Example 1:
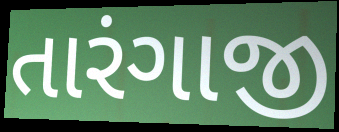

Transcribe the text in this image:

તારંગાજી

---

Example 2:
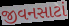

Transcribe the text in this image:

જીવનસાટાં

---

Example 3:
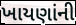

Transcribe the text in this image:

ખાયણાંની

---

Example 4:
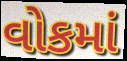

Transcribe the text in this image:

વોકમાં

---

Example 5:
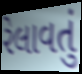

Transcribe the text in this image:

રેલાવતું